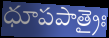
ధూపపాత్రైః